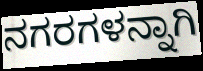
ನಗರಗಳನ್ನಾಗಿ